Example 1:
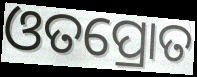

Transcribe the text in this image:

ଓତପ୍ରୋତ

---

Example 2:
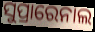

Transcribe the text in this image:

ସୁପ୍ରାରେନାଲ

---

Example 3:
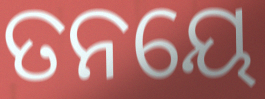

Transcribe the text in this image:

ତନୟେ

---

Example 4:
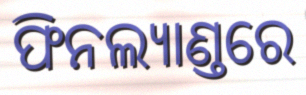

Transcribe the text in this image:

ଫିନଲ୍ୟାଣ୍ଡରେ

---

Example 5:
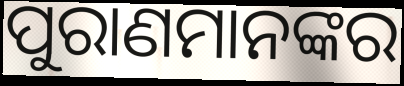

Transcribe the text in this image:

ପୁରାଣମାନଙ୍କର